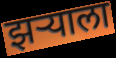
झर्‍याला